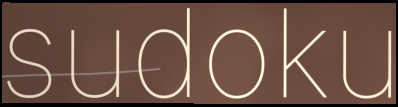
sudoku